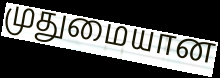
முதுமையான